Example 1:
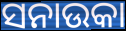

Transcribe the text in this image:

ସନାଉକା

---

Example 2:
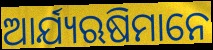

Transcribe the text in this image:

ଆର୍ଯ୍ୟଋଷିମାନେ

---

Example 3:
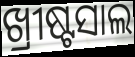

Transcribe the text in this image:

ଖ୍ରୀଷ୍ଟସାଲ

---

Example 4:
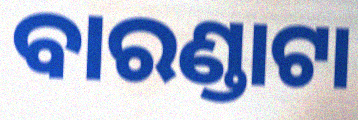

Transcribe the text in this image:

ବାରଣ୍ଡାଟା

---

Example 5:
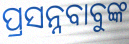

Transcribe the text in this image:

ପ୍ରସନ୍ନବାବୁଙ୍କ